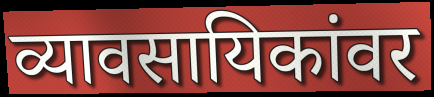
व्यावसायिकांवर